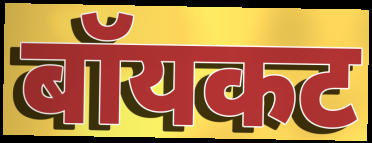
बॉयकट